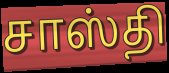
சாஸ்தி